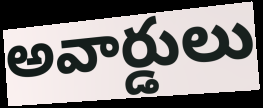
అవార్డులు